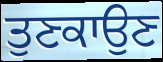
ਤੁਣਕਾਉਣ